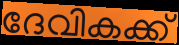
ദേവികക്ക്